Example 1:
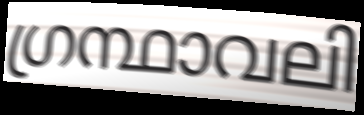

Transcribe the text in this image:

ഗ്രന്ഥാവലി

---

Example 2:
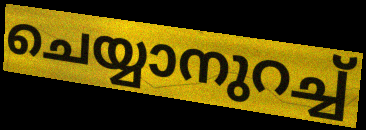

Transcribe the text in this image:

ചെയ്യാനുറച്ച്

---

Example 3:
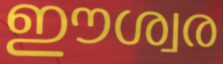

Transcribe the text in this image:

ഈശ്വര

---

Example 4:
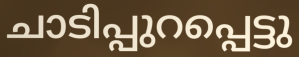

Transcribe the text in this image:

ചാടിപ്പുറപ്പെട്ടു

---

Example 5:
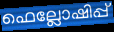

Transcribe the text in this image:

ഫെല്ലോഷിപ്പ്